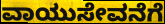
ವಾಯುಸೇವನೆಗೆ